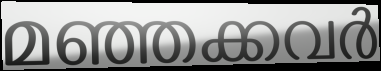
മഞ്ഞക്കവർ